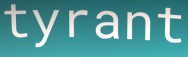
tyrant